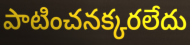
పాటించనక్కరలేదు